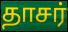
தாசர்